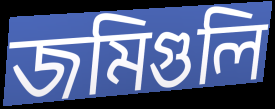
জমিগুলি